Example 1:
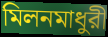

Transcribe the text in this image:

মিলনমাধুরী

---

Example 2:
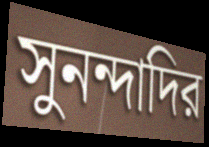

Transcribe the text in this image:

সুনন্দাদির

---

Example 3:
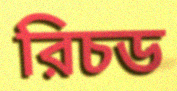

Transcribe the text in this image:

রিচড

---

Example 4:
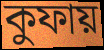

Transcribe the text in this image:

কুফায়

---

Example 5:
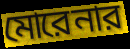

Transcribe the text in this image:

মোরেনার